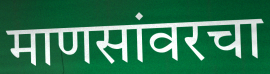
माणसांवरचा